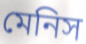
মেনিস